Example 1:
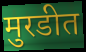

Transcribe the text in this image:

मुरडीत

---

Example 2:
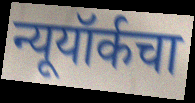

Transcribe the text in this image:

न्यूयॉर्कचा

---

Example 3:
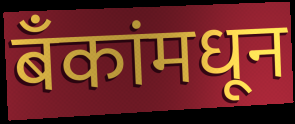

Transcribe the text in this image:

बॅंकांमधून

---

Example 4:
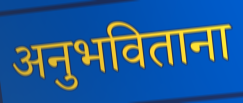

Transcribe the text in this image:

अनुभविताना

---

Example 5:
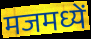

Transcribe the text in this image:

मजमध्यें